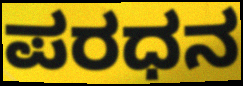
ಪರಧನ